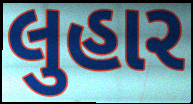
લુહાર